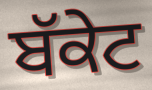
ਬੱਕੇਟ